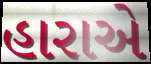
હારાએ